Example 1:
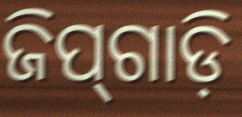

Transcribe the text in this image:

ଜିପ୍‌ଗାଡ଼ି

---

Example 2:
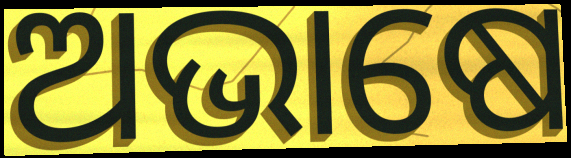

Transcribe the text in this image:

ଅଭାଷେ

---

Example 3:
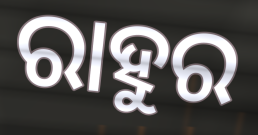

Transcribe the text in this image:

ରାହୁର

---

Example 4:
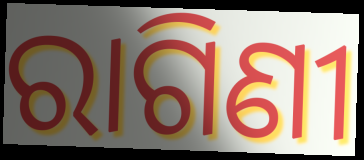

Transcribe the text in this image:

ରାଗିଣୀ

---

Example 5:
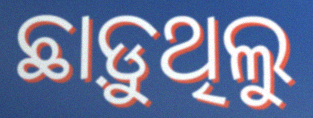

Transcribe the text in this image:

ଛାଡ଼ୁଥିଲୁ